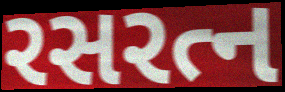
રસરત્ન